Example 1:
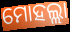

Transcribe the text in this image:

ମୋହଲ୍ଲା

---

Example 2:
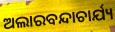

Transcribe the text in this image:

ଅଲାରବନ୍ଦାଚାର୍ଯ୍ୟ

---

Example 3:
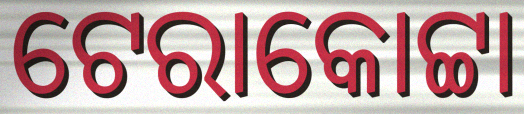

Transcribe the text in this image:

ଟେରାକୋଟ୍ଟା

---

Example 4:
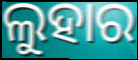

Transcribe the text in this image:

ଲୁହାର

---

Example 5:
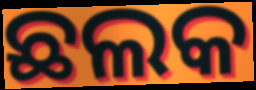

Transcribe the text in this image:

ଛଲକ